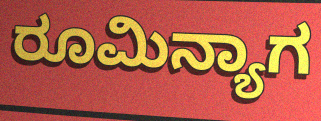
ರೂಮಿನ್ಯಾಗ